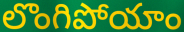
లొంగిపోయాం